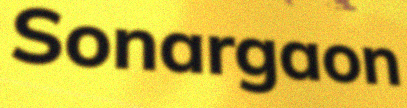
Sonargaon